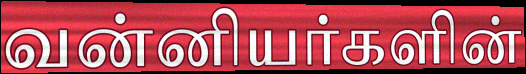
வன்னியர்களின்